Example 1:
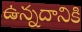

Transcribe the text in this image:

ఉన్నదానికి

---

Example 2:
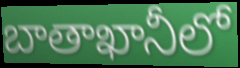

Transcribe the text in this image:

బాతాఖానీలో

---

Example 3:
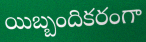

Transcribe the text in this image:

యిబ్బందికరంగా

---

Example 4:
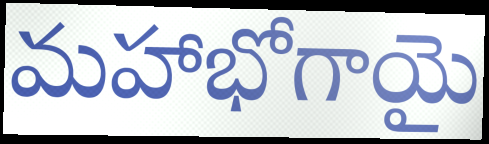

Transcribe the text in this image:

మహాభోగాయై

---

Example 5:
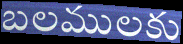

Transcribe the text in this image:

బలములకు